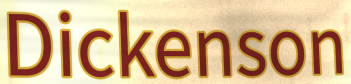
Dickenson